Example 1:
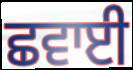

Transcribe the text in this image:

ਛਵਾਈ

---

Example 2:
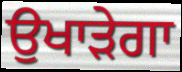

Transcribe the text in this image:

ਉਖਾੜੇਗਾ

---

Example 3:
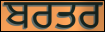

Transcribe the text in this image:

ਬਰਤਰ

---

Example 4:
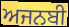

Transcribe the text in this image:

ਅਜਨਬੀ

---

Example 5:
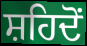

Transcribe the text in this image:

ਸ਼ਹਿਦੋਂ